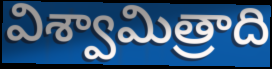
విశ్వామిత్రాది